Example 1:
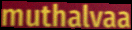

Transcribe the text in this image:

muthalvaa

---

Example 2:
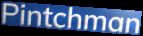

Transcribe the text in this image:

Pintchman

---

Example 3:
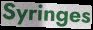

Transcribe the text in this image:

Syringes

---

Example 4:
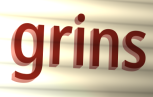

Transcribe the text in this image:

grins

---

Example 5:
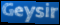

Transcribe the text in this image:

Geysir